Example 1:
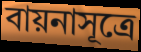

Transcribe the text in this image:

বায়নাসূত্রে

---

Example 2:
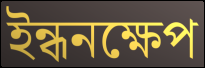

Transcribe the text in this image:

ইন্ধনক্ষেপ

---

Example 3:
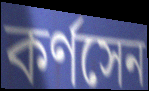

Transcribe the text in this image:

কর্ণসেন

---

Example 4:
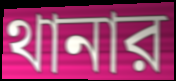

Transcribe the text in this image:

থানার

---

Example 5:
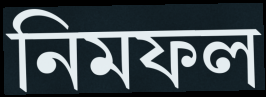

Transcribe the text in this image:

নিমফল